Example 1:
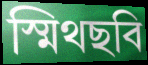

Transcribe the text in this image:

স্মিথছবি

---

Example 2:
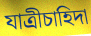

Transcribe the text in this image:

যাত্রীচাহিদা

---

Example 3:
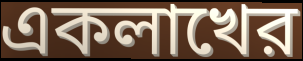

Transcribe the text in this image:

একলাখের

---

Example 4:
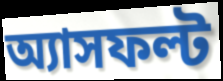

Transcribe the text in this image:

অ্যাসফল্ট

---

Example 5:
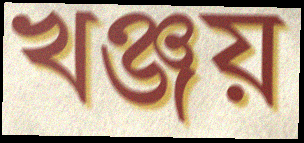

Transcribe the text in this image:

খঞ্জয়